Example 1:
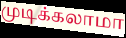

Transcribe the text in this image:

முடிக்கலாமா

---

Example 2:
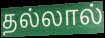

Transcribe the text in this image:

தல்லால்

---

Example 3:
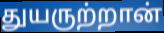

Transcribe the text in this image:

துயருற்றான்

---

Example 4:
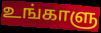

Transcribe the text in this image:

உங்காளு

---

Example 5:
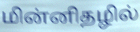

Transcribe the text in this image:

மின்னிதழில்